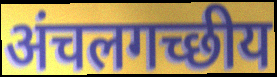
अंचलगच्छीय